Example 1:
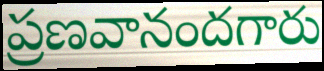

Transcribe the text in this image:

ప్రణవానందగారు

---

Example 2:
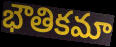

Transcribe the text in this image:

భౌతికమా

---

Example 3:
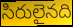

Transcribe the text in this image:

సిరులైనది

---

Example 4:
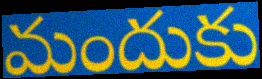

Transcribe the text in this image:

మందుకు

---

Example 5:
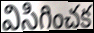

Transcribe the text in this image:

విసిగించక